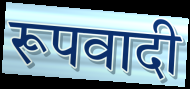
रूपवादी